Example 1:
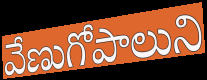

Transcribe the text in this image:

వేణుగోపాలుని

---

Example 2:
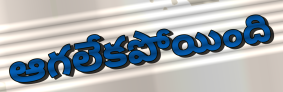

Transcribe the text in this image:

ఆగలేకపోయింది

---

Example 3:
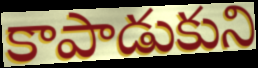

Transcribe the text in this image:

కాపాడుకుని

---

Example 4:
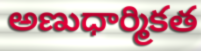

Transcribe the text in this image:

అణుధార్మికత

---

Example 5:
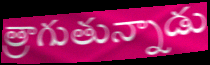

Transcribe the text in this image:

త్రాగుతున్నాడు